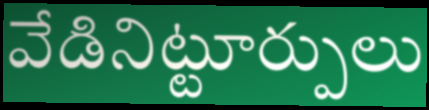
వేడినిట్టూర్పులు